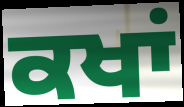
ਕਖਾਂ